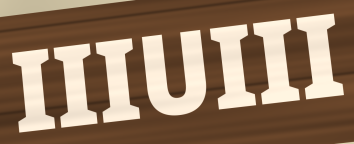
IIIUIII